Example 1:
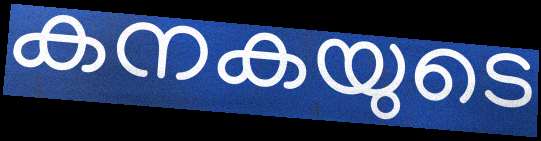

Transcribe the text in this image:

കനകയുടെ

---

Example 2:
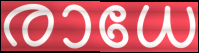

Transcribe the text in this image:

രാധേ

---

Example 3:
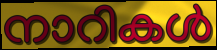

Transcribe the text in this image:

നാറികൾ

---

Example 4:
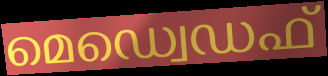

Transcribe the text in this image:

മെഡ്വെഡഫ്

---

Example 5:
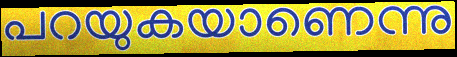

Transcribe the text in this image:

പറയുകയാണെന്നു